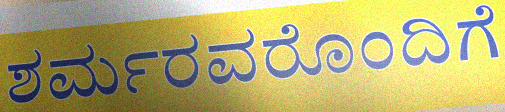
ಶರ್ಮರವರೊಂದಿಗೆ